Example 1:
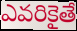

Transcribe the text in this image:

ఎవరికైతే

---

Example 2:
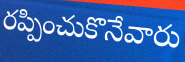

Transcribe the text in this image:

రప్పించుకొనేవారు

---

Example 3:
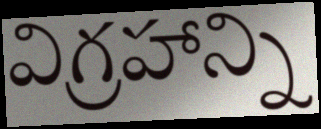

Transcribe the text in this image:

విగ్రహాన్ని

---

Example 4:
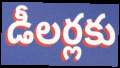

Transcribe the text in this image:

డీలర్లకు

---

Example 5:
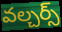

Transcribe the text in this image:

వల్చర్స్